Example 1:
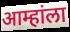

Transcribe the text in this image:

आम्हांला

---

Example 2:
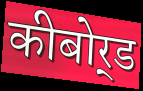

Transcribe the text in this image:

कीबोर्ड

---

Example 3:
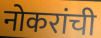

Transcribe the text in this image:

नोकरांची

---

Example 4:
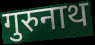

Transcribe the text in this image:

गुरुनाथ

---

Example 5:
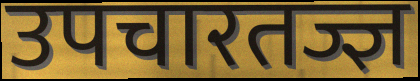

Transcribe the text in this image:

उपचारतज्ज्ञ